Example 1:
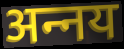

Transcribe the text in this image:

अन्नय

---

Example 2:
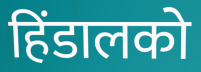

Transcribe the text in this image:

हिंडालको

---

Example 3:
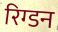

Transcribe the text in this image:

रिग्डन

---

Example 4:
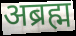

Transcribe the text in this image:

अब्रह्म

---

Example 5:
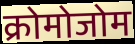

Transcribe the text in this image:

क्रोमोजोम